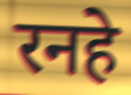
रनहे